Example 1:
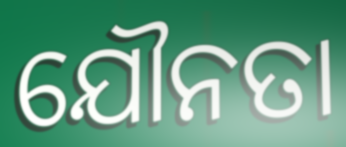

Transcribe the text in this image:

ଯୌନତା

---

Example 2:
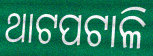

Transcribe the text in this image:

ଥାଟପଟାଳି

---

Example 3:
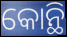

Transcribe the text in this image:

କୋନ୍ଥି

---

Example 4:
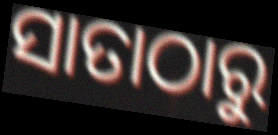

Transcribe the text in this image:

ସାତାଠାରୁ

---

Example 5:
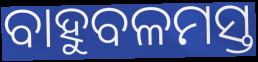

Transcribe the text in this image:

ବାହୁବଳମସ୍ତ